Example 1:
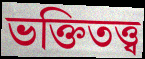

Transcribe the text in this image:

ভক্তিতত্ত্ব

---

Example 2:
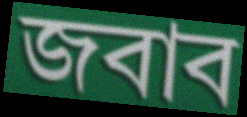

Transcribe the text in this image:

জবাব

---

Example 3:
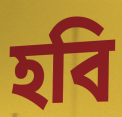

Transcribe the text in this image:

হবি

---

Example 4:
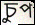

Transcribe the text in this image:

চুপ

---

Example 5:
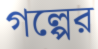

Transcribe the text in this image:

গল্পের